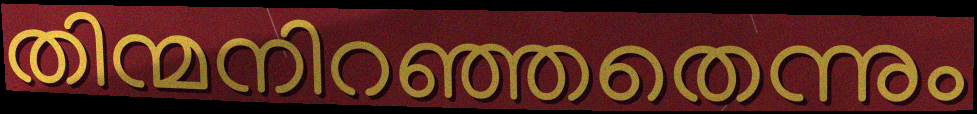
തിന്മനിറഞ്ഞതെന്നും